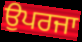
ਉਪਰਜਾ